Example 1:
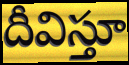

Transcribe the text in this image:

దీవిస్తూ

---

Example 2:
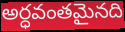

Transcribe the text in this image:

అర్ధవంతమైనది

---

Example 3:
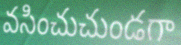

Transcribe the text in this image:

వసించుచుండగా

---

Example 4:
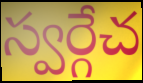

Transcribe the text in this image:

స్వర్గేచ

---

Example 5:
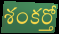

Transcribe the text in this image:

శంకర్తో